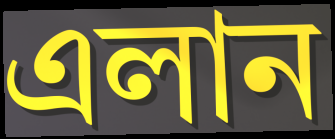
এলান